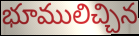
భూములిచ్చిన